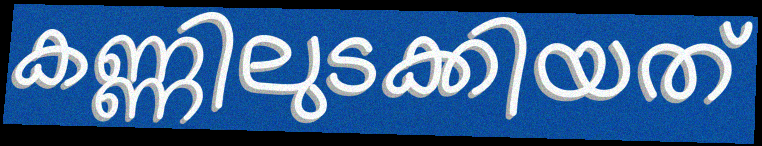
കണ്ണിലുടക്കിയത്